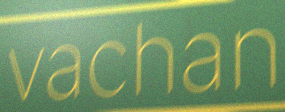
vachan